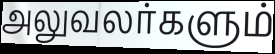
அலுவலர்களும்